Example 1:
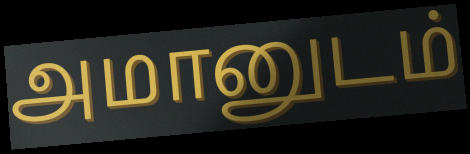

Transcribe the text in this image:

அமானுடம்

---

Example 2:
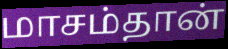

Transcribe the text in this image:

மாசம்தான்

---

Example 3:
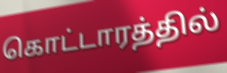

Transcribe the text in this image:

கொட்டாரத்தில்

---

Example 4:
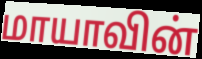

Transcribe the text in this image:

மாயாவின்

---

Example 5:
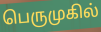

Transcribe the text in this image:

பெருமுகில்